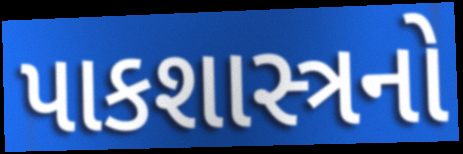
પાકશાસ્ત્રનો